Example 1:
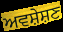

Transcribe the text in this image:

ਅਵਸ਼ੇਸ਼ਣ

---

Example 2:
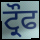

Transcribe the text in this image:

ਟ੍ਰੌਫ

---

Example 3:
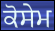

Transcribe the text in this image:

ਕੋਸੇਮ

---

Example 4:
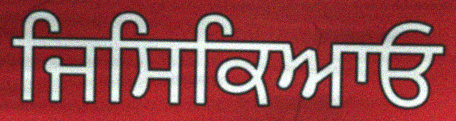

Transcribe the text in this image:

ਜਿਸਿਕਿਆਓ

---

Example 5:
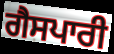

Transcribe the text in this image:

ਗੈਸਪਾਰੀ